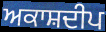
ਅਕਾਸ਼ਦੀਪ